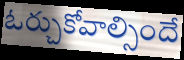
ఓర్చుకోవాల్సిందే